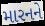
મારનને